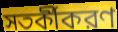
সতর্কীকরণ